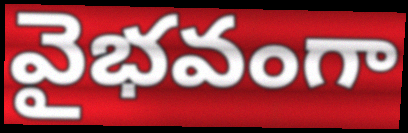
వైభవంగా